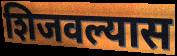
शिजवल्यास